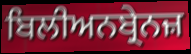
ਬਿਲੀਅਨਬ੍ਰੇਨਜ਼